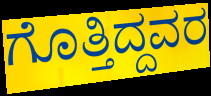
ಗೊತ್ತಿದ್ದವರ